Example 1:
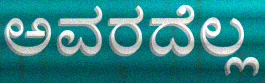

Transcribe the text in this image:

ಅವರದೆಲ್ಲ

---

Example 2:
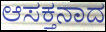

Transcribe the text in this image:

ಆಸಕ್ತನಾದ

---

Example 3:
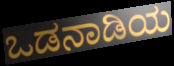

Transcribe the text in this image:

ಒಡನಾಡಿಯ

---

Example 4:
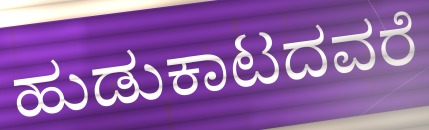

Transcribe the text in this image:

ಹುಡುಕಾಟದವರೆ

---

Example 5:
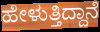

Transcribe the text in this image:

ಹೇಳುತ್ತಿದ್ದಾನೆ